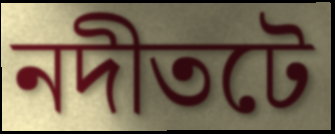
নদীতটে